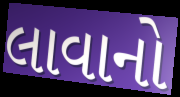
લાવાનો